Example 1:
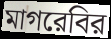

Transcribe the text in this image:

মাগরেবির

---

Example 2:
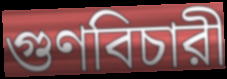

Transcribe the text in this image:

গুণবিচারী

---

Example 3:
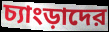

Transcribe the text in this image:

চ্যাংড়াদের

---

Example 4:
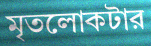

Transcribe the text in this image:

মৃতলোকটার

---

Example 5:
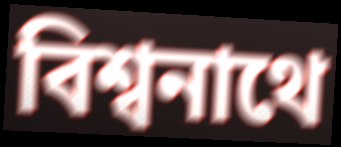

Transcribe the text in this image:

বিশ্বনাথে